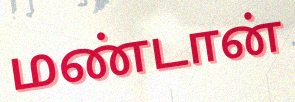
மண்டான்